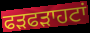
ਫੜਫੜਾਹਟਾਂ